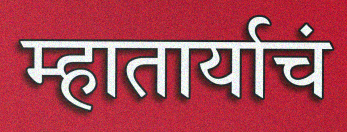
म्हातार्याचं